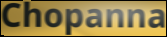
Chopanna